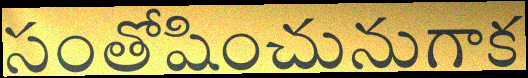
సంతోషించునుగాక